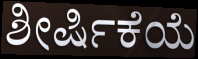
ಶೀರ್ಷಿಕೆಯೆ